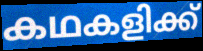
കഥകളിക്ക്